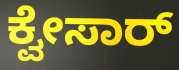
ಕ್ವೇಸಾರ್